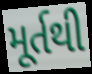
મૂર્તથી